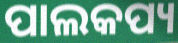
ପାଲକପ୍ୟ